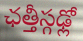
ఛత్తీస్గఢ్లో